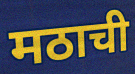
मठाची